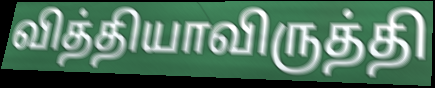
வித்தியாவிருத்தி